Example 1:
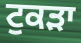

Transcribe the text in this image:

ਟੁਕਡ਼ਾ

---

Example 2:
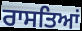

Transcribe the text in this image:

ਰਾਸਤਿਆਂ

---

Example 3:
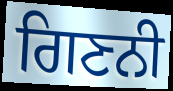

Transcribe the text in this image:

ਗਿਣਨੀ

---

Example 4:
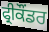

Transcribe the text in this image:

ਫ੍ਰੀਕੌਂਡਰ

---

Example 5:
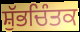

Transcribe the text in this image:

ਸ਼ੁੱਭਚਿੰਤਕ